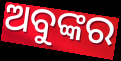
ଅବୁଙ୍କର